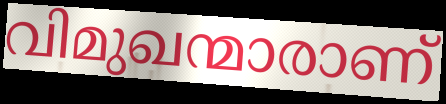
വിമുഖന്മാരാണ്